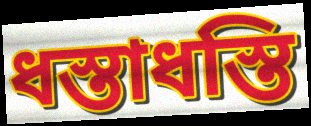
ধস্তাধস্তি